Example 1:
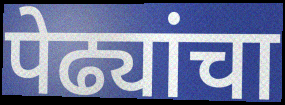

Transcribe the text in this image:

पेढ्यांचा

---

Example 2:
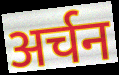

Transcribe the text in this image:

अर्चन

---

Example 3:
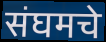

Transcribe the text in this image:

संघमचे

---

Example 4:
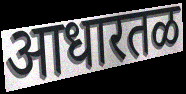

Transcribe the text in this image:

आधारतळ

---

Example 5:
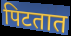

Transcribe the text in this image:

पिटतात